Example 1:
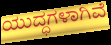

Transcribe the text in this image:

ಯುದ್ಧಗಳಾಗಿವೆ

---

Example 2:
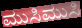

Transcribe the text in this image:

ಮುಸಿಮುಸಿ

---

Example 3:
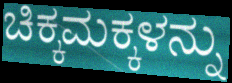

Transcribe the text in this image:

ಚಿಕ್ಕಮಕ್ಕಳನ್ನು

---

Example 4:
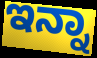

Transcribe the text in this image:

ಇನ್ನಾ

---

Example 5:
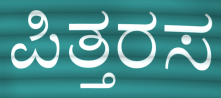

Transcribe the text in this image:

ಪಿತ್ತರಸ